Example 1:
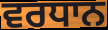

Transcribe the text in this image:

ਵਰਧਾਨ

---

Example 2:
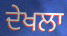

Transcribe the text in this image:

ਦੇਖਲਾ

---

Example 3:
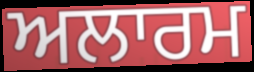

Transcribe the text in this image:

ਅਲਾਰਮ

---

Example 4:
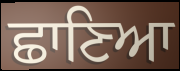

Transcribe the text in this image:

ਛਾਣਿਆ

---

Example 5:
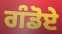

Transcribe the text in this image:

ਗੰਡੋਏ